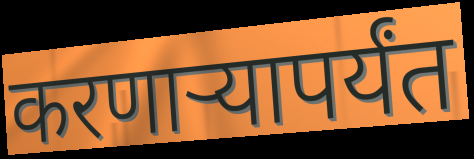
करणाऱ्यापर्यंत